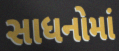
સાધનોમાં